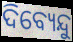
ଦିବ୍ୟେନ୍ଦୁ